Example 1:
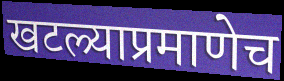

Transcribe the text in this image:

खटल्याप्रमाणेच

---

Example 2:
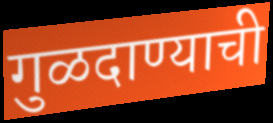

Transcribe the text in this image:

गुळदाण्याची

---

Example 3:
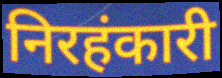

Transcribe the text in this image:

निरहंकारी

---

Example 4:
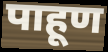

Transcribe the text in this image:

पाहूण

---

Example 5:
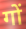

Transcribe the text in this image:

गों